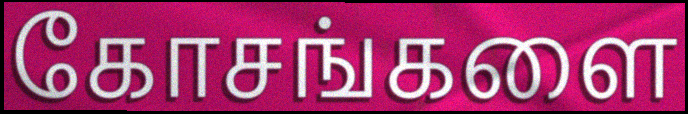
கோசங்களை